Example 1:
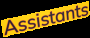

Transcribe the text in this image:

Assistants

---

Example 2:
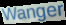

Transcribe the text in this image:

Wanger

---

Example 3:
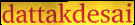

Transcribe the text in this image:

dattakdesai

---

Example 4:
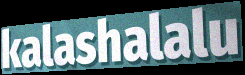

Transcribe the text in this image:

kalashalalu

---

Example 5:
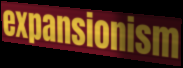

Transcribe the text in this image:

expansionism